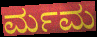
ರ್ಮಮ